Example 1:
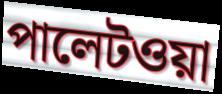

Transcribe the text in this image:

পালেটওয়া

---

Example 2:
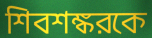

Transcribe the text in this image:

শিবশঙ্করকে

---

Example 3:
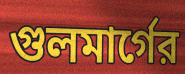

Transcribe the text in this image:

গুলমার্গের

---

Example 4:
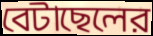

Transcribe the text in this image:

বেটাছেলের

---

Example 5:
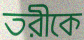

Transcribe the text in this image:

তরীকে